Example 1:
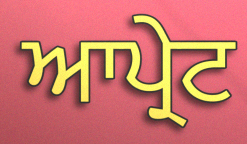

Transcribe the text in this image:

ਆਪ੍ਰੇਟ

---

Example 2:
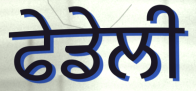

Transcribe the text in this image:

ਫੇਡੇਲੀ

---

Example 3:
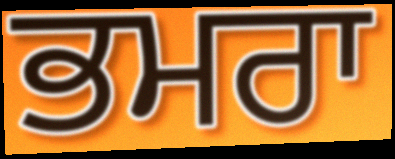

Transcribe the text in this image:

ਭਮਰਾ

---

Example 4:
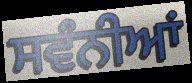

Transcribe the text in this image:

ਸਵੰਨੀਆਂ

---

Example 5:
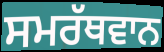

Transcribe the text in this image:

ਸਮਰੱਥਵਾਨ